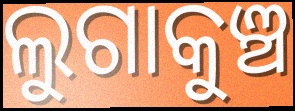
ଲୁଗାକୁଞ୍ଚ